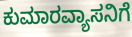
ಕುಮಾರವ್ಯಾಸನಿಗೆ